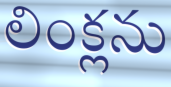
లింక్లను